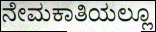
ನೇಮಕಾತಿಯಲ್ಲೂ